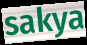
sakya